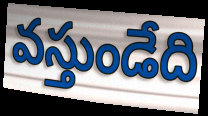
వస్తుండేది